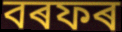
বৰফৰ